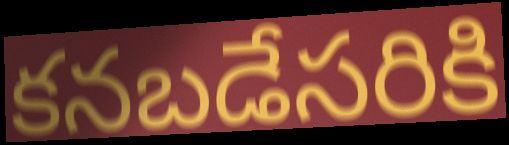
కనబడేసరికి